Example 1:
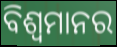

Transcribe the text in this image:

ବିଶ୍ୱମାନର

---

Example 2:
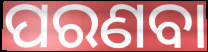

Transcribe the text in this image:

ପରଣବା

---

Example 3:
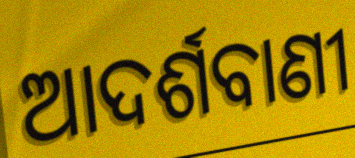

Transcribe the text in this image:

ଆଦର୍ଶବାଣୀ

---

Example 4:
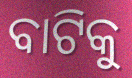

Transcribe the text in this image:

ବାଟିକୁ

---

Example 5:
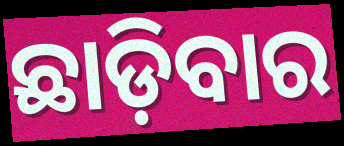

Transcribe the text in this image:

ଛାଡ଼ିବାର